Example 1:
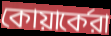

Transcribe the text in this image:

কোয়ার্কেরা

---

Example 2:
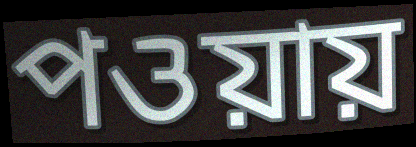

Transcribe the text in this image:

পওয়ায়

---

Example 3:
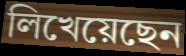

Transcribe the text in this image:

লিখেয়েছেন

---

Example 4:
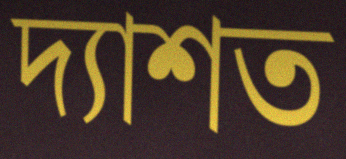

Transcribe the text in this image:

দ্যাশত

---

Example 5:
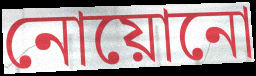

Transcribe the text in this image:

নোয়োনো